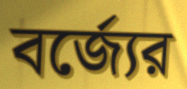
বর্জ্যের